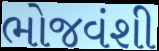
ભોજવંશી